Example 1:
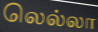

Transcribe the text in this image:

லெல்லா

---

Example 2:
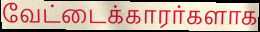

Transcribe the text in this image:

வேட்டைக்காரர்களாக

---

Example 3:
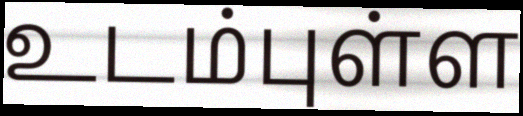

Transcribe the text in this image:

உடம்புள்ள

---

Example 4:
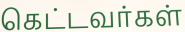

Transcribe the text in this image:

கெட்டவர்கள்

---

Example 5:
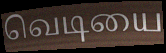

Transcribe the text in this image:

வெடியை